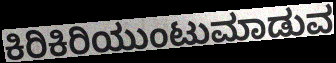
ಕಿರಿಕಿರಿಯುಂಟುಮಾಡುವ